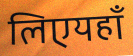
लिएयहाँ